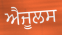
ਐਜੂਲਸ